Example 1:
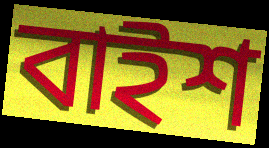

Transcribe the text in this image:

বাইশ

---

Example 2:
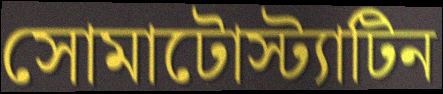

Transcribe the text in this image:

সোমাটোস্ট্যাটিন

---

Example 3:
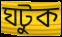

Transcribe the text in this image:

ঘটুক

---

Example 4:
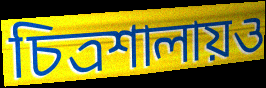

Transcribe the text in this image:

চিত্রশালায়ও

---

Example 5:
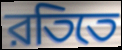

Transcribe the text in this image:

রতিতে